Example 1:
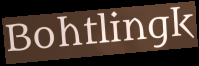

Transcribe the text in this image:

Bohtlingk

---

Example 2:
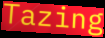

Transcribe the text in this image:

Tazing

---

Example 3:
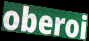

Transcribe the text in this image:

oberoi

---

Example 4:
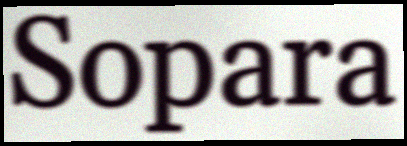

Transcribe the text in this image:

Sopara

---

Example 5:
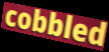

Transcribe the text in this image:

cobbled